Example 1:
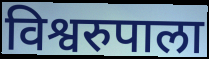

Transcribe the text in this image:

विश्वरुपाला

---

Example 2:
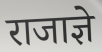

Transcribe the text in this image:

राजाज्ञे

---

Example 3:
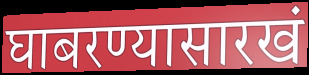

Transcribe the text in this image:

घाबरण्यासारखं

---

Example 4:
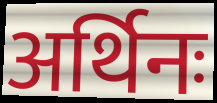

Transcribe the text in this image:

अर्थिनः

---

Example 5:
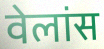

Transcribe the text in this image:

वेलांस